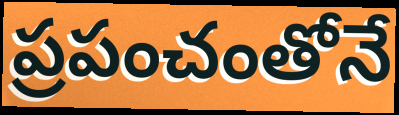
ప్రపంచంతోనే